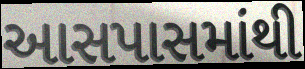
આસપાસમાંથી